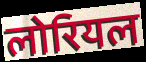
लोरियल